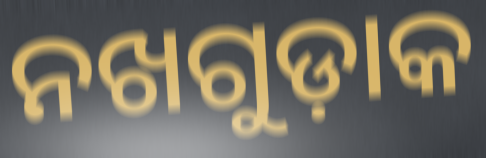
ନଖଗୁଡ଼ାକ